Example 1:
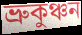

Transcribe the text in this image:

ভ্রুকুঞ্চন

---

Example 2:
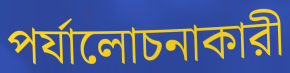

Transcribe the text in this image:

পর্যালোচনাকারী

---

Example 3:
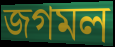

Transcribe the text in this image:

জগমল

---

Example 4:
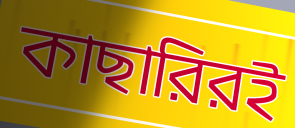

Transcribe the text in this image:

কাছারিরই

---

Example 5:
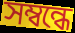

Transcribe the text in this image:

সম্বন্ধে